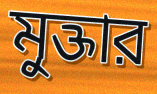
মুক্তার